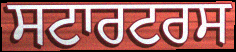
ਸਟਾਰਟਰਸ